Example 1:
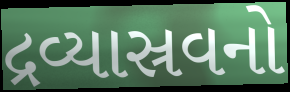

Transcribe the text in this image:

દ્રવ્યાસ્રવનો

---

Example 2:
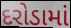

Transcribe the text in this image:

દરોડામાં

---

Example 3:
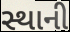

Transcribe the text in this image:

સ્થાની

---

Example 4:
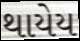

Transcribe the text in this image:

થાયેય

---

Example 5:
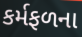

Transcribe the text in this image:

કર્મફળના